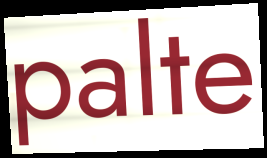
palte